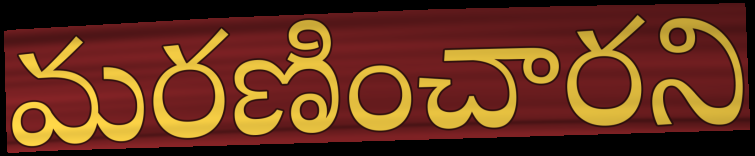
మరణించారని